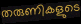
തരുണികളുടെ